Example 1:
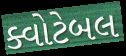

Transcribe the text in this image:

ક્વોટેબલ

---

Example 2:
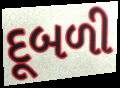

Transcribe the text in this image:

દૂબળી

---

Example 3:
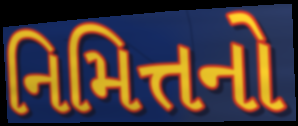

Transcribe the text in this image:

નિમિત્તનો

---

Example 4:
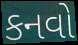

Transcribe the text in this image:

કનવો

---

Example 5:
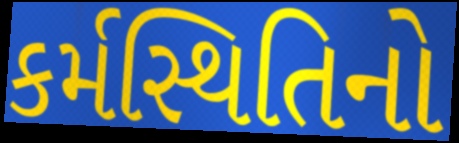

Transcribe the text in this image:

કર્મસ્થિતિનો